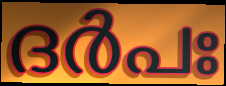
ദർപഃ